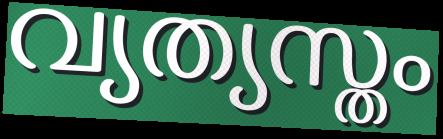
വ്യത്യസ്തം